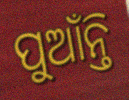
ପୁଆଁନ୍ତି